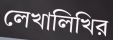
লেখালিখির